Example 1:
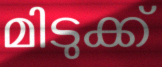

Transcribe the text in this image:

മിടുക്ക്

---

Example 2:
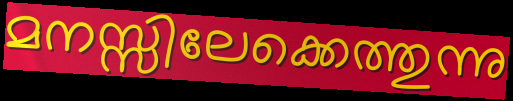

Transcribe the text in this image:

മനസ്സിലേക്കെത്തുന്നു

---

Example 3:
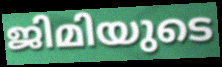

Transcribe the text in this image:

ജിമിയുടെ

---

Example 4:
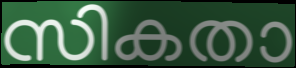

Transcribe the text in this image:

സികതാ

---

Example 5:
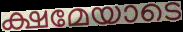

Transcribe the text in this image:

ക്ഷമേയാടെ